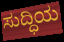
ಸುದ್ಧಿಯ